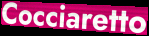
Cocciaretto